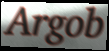
Argob